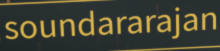
soundararajan